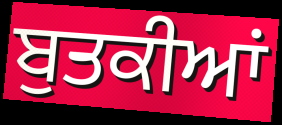
ਬੁਤਕੀਆਂ